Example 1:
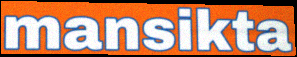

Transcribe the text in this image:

mansikta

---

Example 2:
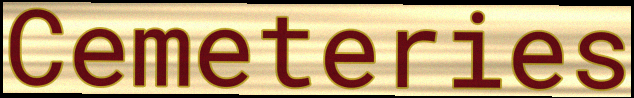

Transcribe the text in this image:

Cemeteries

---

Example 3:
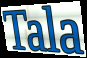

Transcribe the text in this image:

Tala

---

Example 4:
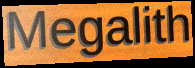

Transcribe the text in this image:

Megalith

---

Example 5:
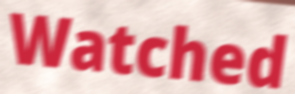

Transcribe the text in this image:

Watched